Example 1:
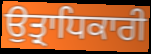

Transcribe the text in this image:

ਉਤ੍ਰਾਧਿਕਾਰੀ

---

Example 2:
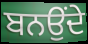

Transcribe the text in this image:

ਬਨਉਂਦੇ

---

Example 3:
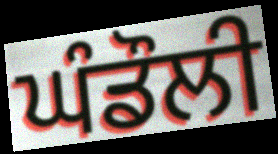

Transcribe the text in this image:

ਘੰਡੌਲੀ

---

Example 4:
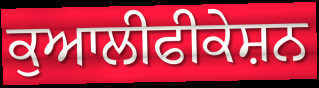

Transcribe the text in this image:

ਕੁਆਲੀਫੀਕੇਸ਼ਨ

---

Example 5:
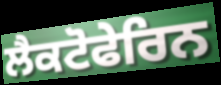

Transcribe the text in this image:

ਲੈਕਟੋਫੇਰਿਨ